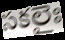
సకలైః